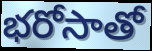
భరోసాతో